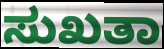
ಸುಖತಾ